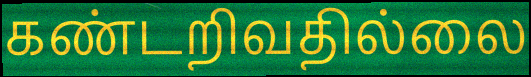
கண்டறிவதில்லை